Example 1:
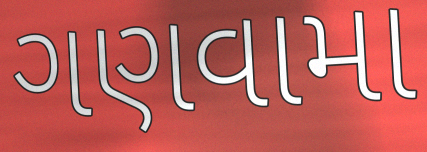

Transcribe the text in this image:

ગણવામા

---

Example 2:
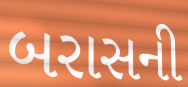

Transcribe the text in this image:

બરાસની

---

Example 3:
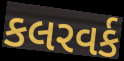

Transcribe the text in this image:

કલરવર્ક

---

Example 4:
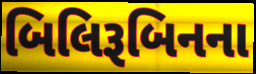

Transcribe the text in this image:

બિલિરૂબિનના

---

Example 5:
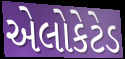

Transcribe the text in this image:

એલોકેટેડ